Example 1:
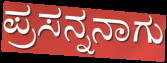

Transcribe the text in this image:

ಪ್ರಸನ್ನನಾಗು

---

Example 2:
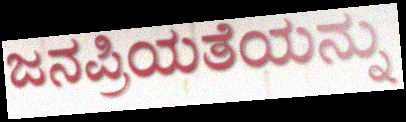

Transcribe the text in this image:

ಜನಪ್ರಿಯತೆಯನ್ನು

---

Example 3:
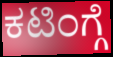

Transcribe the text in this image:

ಕಟಿಂಗ್ಗೆ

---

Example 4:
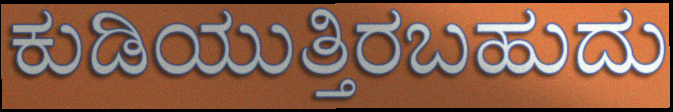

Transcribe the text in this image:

ಕುಡಿಯುತ್ತಿರಬಹುದು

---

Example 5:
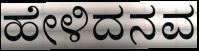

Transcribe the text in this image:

ಹೇಳಿದನವ